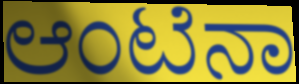
ಆಂಟೆನಾ